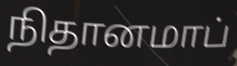
நிதானமாப்